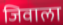
जिवाला